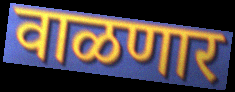
वाळणार